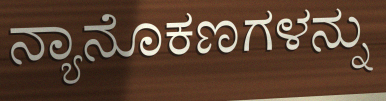
ನ್ಯಾನೊಕಣಗಳನ್ನು